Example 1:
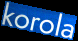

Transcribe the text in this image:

korola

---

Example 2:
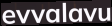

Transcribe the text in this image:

evvalavu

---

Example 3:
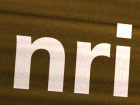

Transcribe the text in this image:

nri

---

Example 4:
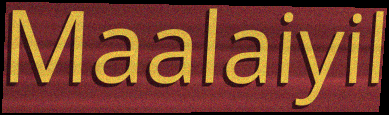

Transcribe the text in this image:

Maalaiyil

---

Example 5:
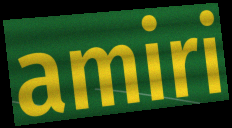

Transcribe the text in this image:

amiri